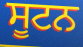
ਸੂਟਨ